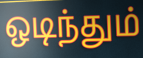
ஒடிந்தும்